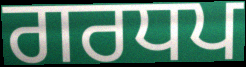
ਗਰਧਪ